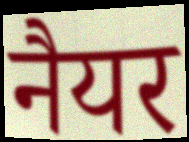
नैयर